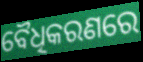
ବୈଧିକରଣରେ